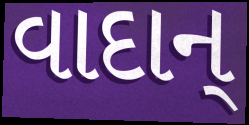
વાદાન્